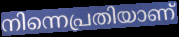
നിന്നെപ്രതിയാണ്